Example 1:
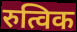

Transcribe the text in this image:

रुत्विक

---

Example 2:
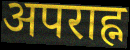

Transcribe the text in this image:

अपराह्न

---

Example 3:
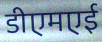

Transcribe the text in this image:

डीएमएई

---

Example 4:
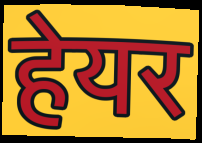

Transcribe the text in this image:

हेयर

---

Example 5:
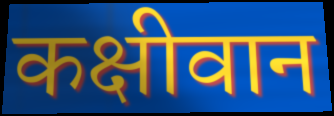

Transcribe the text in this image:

कक्षीवान